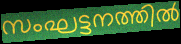
സംഘട്ടനത്തിൽ